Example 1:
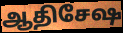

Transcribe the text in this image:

ஆதிசேஷ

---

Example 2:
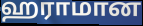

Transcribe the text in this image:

ஹராமான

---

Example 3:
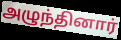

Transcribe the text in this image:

அழுந்தினார்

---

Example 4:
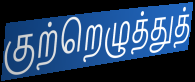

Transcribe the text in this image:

குற்றெழுத்துத்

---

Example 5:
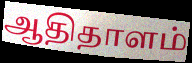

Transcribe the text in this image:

ஆதிதாளம்